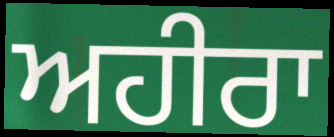
ਅਹੀਰਾ